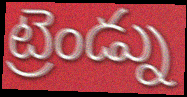
ట్రెండ్ను